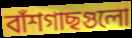
বাঁশগাছগুলো